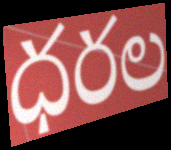
ధరల